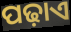
ପଢ଼ାଏ